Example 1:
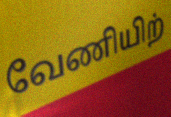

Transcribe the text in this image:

வேணியிற்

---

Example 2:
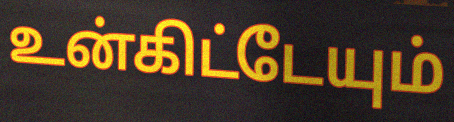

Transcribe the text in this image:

உன்கிட்டேயும்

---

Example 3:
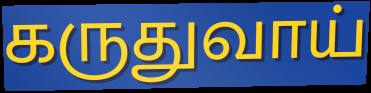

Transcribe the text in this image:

கருதுவாய்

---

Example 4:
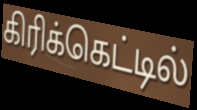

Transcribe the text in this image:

கிரிக்கெட்டில்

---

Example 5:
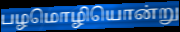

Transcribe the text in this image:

பழமொழியொன்று